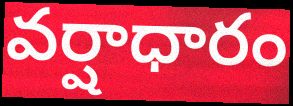
వర్షాధారం